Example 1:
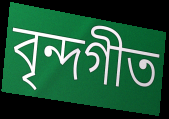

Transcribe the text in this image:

বৃন্দগীত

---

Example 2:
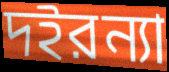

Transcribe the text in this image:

দইরন্যা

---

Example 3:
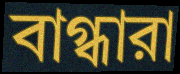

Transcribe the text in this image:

বাগ্ধারা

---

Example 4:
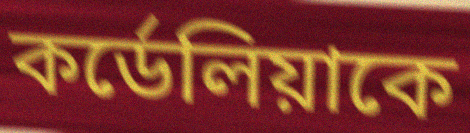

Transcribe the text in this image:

কর্ডেলিয়াকে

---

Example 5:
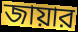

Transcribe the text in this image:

জায়ার